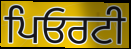
ਪਿਓਰਟੀ